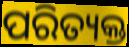
ପରିତ୍ୟକ୍ତ